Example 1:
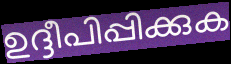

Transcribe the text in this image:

ഉദ്ദീപിപ്പിക്കുക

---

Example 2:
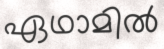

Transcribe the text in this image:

ഏഥാമിൽ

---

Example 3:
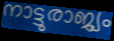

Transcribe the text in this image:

നാട്ടുരാജ്യം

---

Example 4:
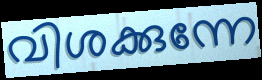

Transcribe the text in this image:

വിശക്കുന്നേ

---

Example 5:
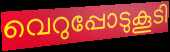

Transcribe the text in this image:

വെറുപ്പോടുകൂടി